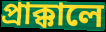
প্রাক্কালে